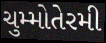
ચુમ્મોતેરમી